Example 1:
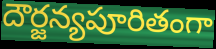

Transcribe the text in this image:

దౌర్జన్యపూరితంగా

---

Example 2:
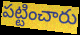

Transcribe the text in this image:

పట్టించారు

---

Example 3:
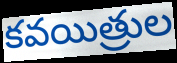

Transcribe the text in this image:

కవయిత్రుల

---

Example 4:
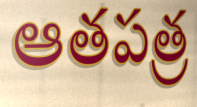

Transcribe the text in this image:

ఆతపత్ర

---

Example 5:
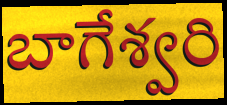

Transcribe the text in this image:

బాగేశ్వరి